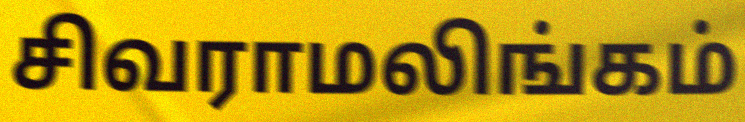
சிவராமலிங்கம்